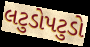
લટુડોપટુડો